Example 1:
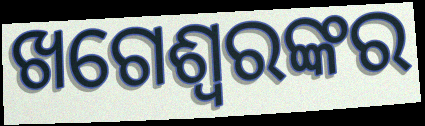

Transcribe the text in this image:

ଖଗେଶ୍ୱରଙ୍କର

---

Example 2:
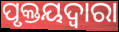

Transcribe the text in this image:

ପୃକ୍ତୟଦ୍ଵାରା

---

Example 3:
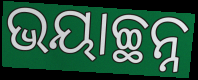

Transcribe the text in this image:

ଭୟାଚ୍ଛନ୍ନ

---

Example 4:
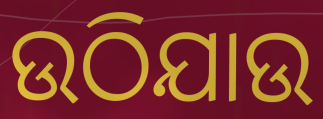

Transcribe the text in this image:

ଉଠିଯାଉ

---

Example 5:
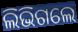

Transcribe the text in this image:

ଲିଭିଗଲେ